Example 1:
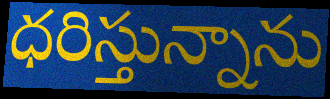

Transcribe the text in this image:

ధరిస్తున్నాను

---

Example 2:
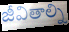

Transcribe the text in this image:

జీవితాల్ని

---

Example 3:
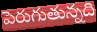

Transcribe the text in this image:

పెరుగుతున్నది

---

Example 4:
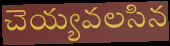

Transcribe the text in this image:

చెయ్యవలసిన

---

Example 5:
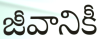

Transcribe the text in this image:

జీవానికీ